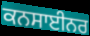
ਕਨਸਾਈਨਰ